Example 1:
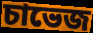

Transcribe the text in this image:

চাভেজ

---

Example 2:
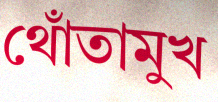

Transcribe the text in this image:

থোঁতামুখ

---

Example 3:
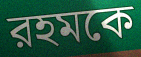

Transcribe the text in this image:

রহমকে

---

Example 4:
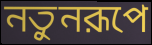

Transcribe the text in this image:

নতুনরূপে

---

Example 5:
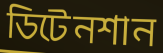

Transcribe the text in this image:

ডিটেনশান